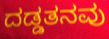
ದಡ್ಡತನವು